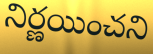
నిర్ణయించని